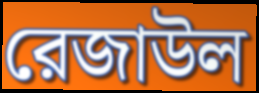
রেজাউল